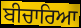
ਬੀਚਾਰਿਆ